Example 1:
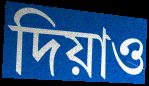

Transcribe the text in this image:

দিয়াও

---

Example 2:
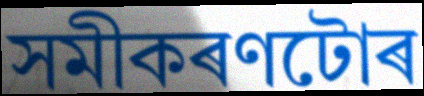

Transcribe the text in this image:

সমীকৰণটোৰ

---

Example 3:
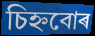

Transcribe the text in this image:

চিহ্নবোৰ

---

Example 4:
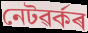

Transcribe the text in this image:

নেটৱৰ্কৰ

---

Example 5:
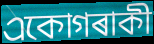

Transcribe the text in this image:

একোগৰাকী